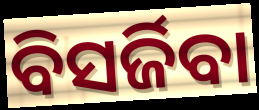
ବିସର୍ଜିବା